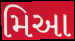
મિઆ